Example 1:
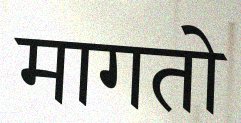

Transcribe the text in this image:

मागतो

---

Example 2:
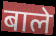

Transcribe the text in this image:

बाले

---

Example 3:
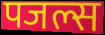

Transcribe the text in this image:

पजल्स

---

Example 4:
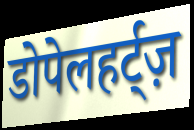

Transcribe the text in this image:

डोपेलहर्ट्ज़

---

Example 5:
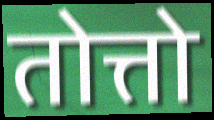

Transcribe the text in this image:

तोत्तो